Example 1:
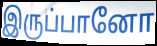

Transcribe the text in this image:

இருப்பானோ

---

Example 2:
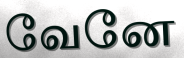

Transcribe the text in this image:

வேனே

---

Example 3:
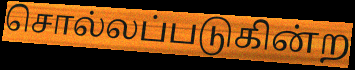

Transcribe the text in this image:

சொல்லப்படுகின்ற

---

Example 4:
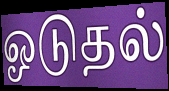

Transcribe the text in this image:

ஓடுதல்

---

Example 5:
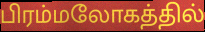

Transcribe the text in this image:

பிரம்மலோகத்தில்